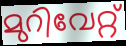
മുറിവേറ്റ്